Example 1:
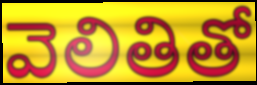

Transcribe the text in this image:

వెలితితో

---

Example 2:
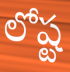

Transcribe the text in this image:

లోష్ట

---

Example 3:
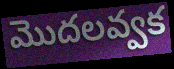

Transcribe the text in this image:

మొదలవ్వక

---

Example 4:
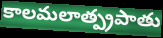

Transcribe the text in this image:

కాలమలాత్ప్రపాతు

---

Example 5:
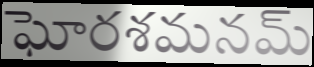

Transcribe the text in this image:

ఘోరశమనమ్